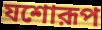
যশোরূপ